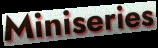
Miniseries